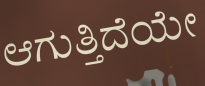
ಆಗುತ್ತಿದೆಯೇ